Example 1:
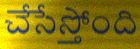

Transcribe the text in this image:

చేసేస్తోంది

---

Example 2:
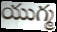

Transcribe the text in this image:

యుగ్మ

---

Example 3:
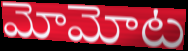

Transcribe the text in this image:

మోమోట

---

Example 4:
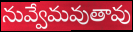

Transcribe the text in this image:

నువ్వేమవుతావు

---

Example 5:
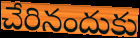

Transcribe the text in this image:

చేరినందుకు